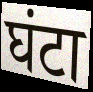
घंटा